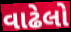
વાઢેલો